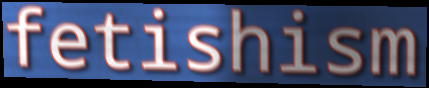
fetishism